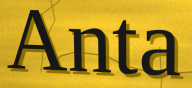
Anta